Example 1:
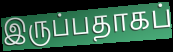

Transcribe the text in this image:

இருப்பதாகப்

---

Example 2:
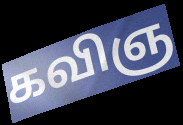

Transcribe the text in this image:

கவிஞ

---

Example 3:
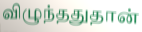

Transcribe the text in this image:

விழுந்ததுதான்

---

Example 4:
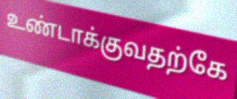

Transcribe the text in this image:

உண்டாக்குவதற்கே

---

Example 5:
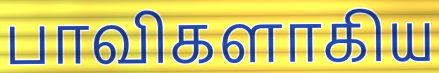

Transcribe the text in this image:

பாவிகளாகிய